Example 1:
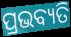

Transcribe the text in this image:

ପ୍ରଭବ୍ୟତି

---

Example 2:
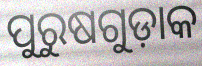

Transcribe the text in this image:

ପୁରୁଷଗୁଡ଼ାକ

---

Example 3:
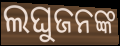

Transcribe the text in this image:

ଲଘୁଜନଙ୍କ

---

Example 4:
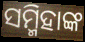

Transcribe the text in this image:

ସମ୍ମିହାଙ୍କ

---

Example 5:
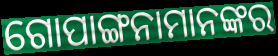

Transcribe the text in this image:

ଗୋପାଙ୍ଗନାମାନଙ୍କର